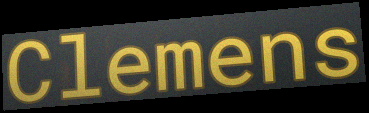
Clemens